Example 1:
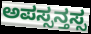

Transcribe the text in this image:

ಅಪಸ್ಸನ್ತಸ್ಸ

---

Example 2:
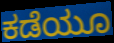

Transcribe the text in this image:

ಕಡೆಯೂ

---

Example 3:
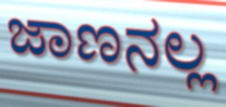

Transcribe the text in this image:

ಜಾಣನಲ್ಲ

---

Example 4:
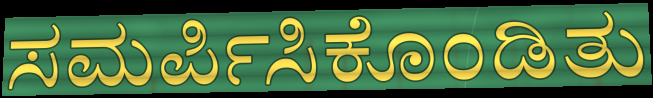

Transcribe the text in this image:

ಸಮರ್ಪಿಸಿಕೊಂಡಿತು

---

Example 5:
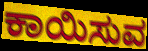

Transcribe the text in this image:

ಕಾಯಿಸುವ